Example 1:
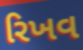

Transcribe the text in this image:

રિખવ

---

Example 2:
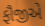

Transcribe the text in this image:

ફૌજીએ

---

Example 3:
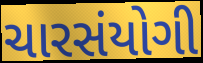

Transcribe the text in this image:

ચારસંયોગી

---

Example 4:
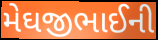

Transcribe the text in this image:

મેઘજીભાઈની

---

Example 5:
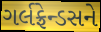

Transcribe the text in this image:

ગર્લફ્રેન્ડસને